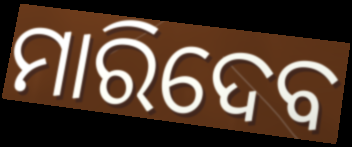
ମାରିଦେବ